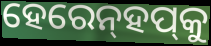
ହେରେନ୍‌ହପ୍‌କୁ